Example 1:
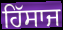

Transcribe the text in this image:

ਹਿੱਸਾਜ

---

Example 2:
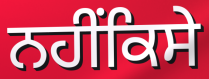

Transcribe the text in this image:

ਨਹੀਂਕਿਸੇ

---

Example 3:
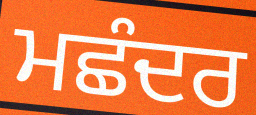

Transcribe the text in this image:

ਮਛੰਦਰ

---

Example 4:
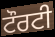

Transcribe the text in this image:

ਟੌਰਟੀ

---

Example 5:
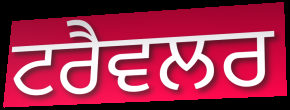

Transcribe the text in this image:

ਟਰੈਵਲਰ